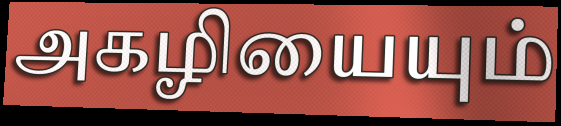
அகழியையும்